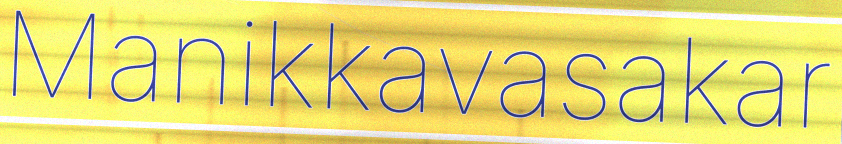
Manikkavasakar